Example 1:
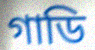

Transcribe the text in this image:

গাডি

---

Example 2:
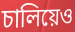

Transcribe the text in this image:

চালিয়েও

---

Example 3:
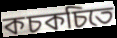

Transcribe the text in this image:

কচকচিতে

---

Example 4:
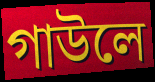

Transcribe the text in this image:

গাউলে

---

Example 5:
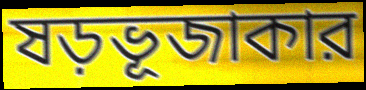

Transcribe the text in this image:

ষড়ভূজাকার